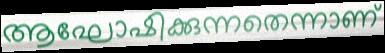
ആഘോഷിക്കുന്നതെന്നാണ്